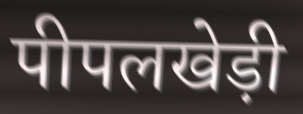
पीपलखेड़ी